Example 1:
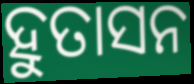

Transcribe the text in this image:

ହୁତାସନ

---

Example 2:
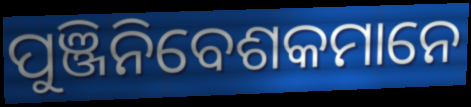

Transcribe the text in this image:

ପୁଞ୍ଜିନିବେଶକମାନେ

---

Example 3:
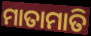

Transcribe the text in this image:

ମାତାମାତି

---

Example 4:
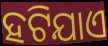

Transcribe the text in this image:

ହଟିଯାଏ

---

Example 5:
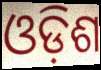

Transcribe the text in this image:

ଓଡ଼ିଶ